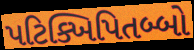
પટિક્ખિપિતબ્બો